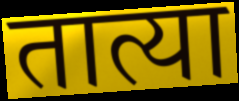
तात्या